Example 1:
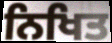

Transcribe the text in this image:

ਨਿਖਿਤ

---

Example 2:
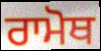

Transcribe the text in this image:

ਰਾਮੋਥ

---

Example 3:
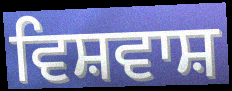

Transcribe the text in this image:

ਵਿਸ਼ਵਾਸ਼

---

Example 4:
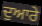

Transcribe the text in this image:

ਦੁਆਰੇ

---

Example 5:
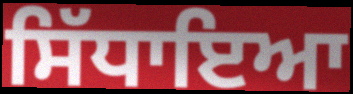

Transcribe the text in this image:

ਸਿੱਧਾਇਆ